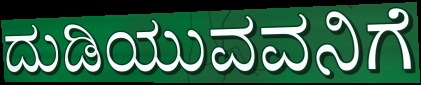
ದುಡಿಯುವವನಿಗೆ